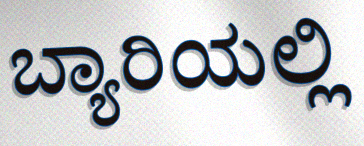
ಬ್ಯಾರಿಯಲ್ಲಿ